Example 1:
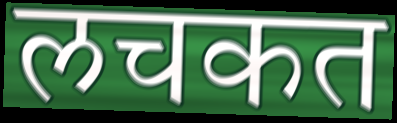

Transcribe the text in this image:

लचकत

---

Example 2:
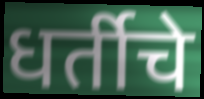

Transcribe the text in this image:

धर्तीचे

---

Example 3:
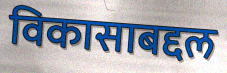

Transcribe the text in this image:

विकासाबद्दल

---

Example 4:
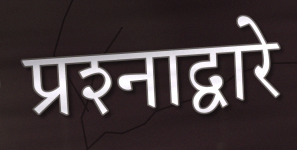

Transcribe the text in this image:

प्रश्नाद्वारे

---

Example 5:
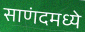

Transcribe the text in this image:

साणंदमध्ये